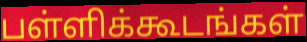
பள்ளிக்கூடங்கள்